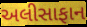
અલીસાફાન